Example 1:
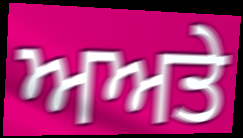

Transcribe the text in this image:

ਅਅਤੇ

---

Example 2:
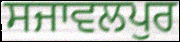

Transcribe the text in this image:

ਸਜਾਵਲਪੁਰ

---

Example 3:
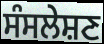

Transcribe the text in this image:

ਸੰਸਲੇਸ਼ਣ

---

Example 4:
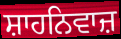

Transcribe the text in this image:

ਸ਼ਾਹਨਿਵਾਜ਼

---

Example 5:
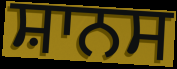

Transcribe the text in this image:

ਸ਼ਾਨਸ